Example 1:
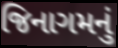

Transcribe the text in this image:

જિનાગમનું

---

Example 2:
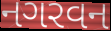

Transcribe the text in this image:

નગરવન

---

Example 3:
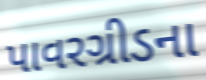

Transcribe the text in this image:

પાવરગ્રીડના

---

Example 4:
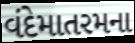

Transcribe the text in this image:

વંદેમાતરમના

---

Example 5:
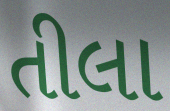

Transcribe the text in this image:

તીલા